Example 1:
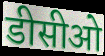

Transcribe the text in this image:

डीसीओ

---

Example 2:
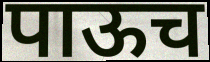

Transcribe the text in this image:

पाऊच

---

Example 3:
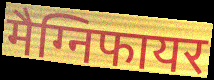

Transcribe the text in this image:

मैग्निफायर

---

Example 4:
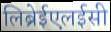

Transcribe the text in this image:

लिब्रेईएलईसी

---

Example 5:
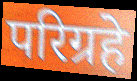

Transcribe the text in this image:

परिग्रहे